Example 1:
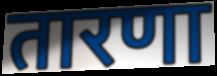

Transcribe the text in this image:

तारणा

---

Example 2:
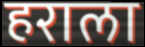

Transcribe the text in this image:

हराला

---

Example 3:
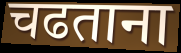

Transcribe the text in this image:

चढताना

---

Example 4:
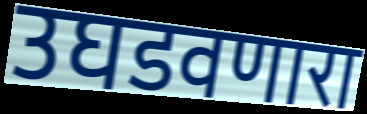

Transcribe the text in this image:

उघडवणारा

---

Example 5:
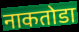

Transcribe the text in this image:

नाकतोडा